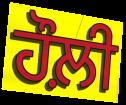
ਹੌਲ਼ੀ